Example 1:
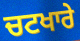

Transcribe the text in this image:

ਚਟਖਾਰੇ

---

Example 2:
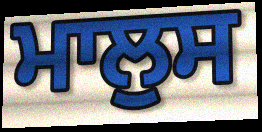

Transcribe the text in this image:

ਮਾਲੁਸ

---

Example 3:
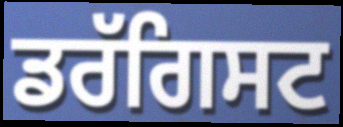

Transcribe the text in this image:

ਡਰੱਗਿਸਟ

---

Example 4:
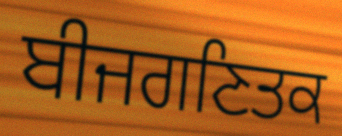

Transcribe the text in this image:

ਬੀਜਗਣਿਤਕ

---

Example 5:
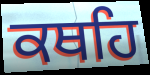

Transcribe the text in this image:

ਕਥਹਿ